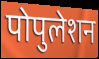
पोपुलेशन